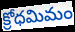
క్రోధమిమం